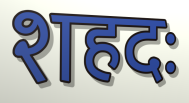
शहदः